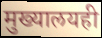
मुख्यालयही